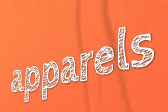
apparels